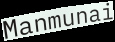
Manmunai